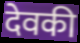
देवकी